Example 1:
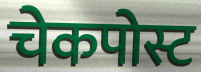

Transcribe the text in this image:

चेकपोस्ट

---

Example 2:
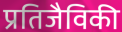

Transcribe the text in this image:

प्रतिजैविकी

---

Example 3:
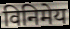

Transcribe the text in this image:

विनिमेय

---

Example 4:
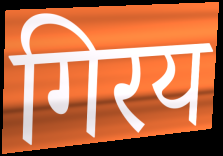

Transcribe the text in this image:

गिरय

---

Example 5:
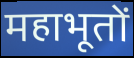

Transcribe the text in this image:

महाभूतों